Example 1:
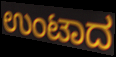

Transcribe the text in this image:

ಉಂಟಾದ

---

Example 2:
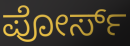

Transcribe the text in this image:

ಪೋರ್ಸ್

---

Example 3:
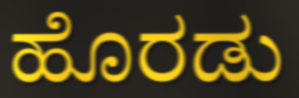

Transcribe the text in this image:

ಹೊರಡು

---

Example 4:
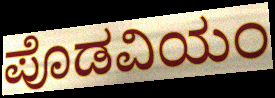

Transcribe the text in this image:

ಪೊಡವಿಯಂ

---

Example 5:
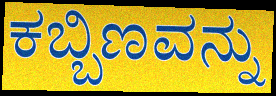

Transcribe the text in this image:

ಕಬ್ಬಿಣವನ್ನು